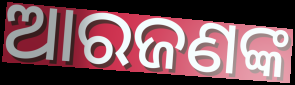
ଆରଜଣଙ୍କ